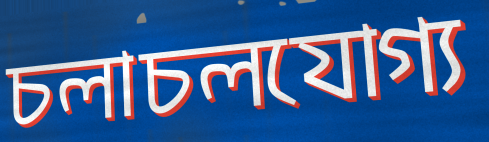
চলাচলযোগ্য